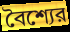
বৈশ্যের